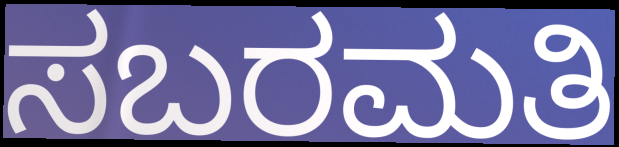
ಸಬರಮತಿ